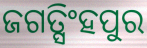
ଜଗତ୍ସିଂହପୁର